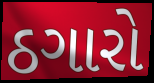
ઠગારો